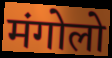
मंगोलो